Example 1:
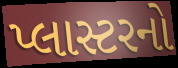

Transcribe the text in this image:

પ્લાસ્ટરનો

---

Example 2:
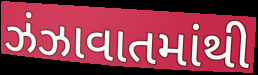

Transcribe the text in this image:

ઝંઝાવાતમાંથી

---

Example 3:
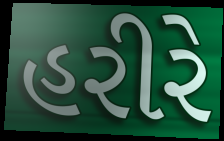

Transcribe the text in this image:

હરીરે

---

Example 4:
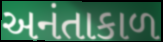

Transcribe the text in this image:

અનંતાકાળ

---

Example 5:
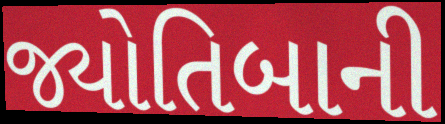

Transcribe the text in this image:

જ્યોતિબાની